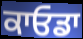
ਕਾਓਡਾ